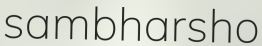
sambharsho